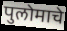
पुलोमाचे